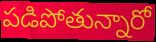
పడిపోతున్నారో